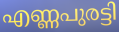
എണ്ണപുരട്ടി